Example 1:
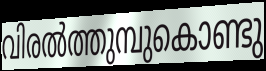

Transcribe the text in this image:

വിരൽത്തുമ്പുകൊണ്ടു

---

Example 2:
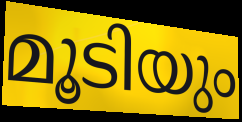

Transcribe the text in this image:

മൂടിയും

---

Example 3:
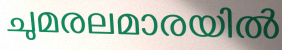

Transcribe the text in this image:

ചുമരലമാരയിൽ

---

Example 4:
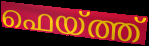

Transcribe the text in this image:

ഫെയ്ത്ത്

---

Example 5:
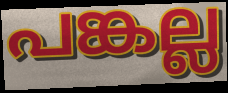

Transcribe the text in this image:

പങ്കല്ല